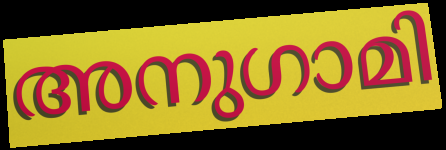
അനുഗാമി